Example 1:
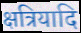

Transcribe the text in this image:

क्षत्रियादि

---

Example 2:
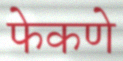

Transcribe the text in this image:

फेकणे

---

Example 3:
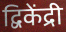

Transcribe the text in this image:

द्विकेंद्री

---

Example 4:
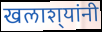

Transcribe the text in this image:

खलाश्यांनी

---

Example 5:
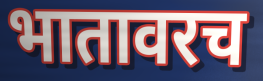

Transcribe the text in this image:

भातावरच